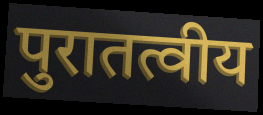
पुरातत्वीय